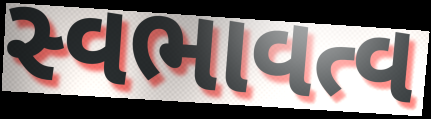
સ્વભાવત્વ